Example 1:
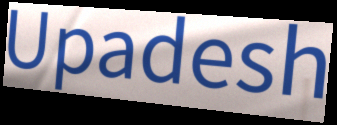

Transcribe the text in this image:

Upadesh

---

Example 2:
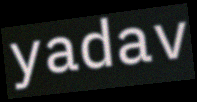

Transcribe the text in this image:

yadav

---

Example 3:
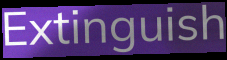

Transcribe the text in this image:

Extinguish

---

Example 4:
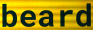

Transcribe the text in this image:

beard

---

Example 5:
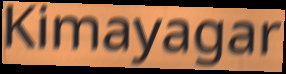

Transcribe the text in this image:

Kimayagar